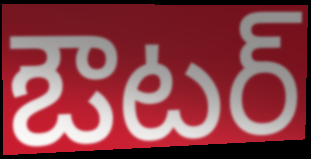
ఔటర్